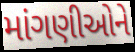
માંગણીઓને